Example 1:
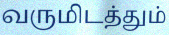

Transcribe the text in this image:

வருமிடத்தும்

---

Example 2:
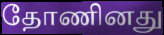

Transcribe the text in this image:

தோணினது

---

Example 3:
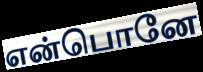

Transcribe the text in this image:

என்பொனே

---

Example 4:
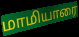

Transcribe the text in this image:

மாமியாரை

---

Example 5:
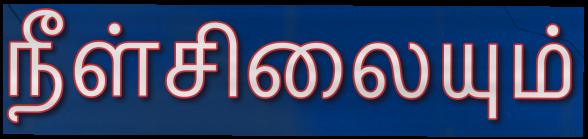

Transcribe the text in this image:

நீள்சிலையும்